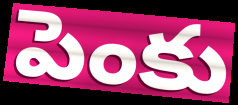
పెంకు